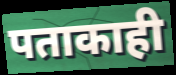
पताकाही